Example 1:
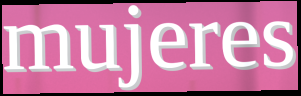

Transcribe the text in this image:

mujeres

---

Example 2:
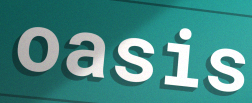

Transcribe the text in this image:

oasis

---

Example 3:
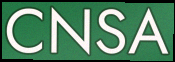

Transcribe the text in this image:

CNSA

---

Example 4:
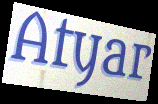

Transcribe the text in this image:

Atyar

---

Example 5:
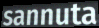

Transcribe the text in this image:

sannuta